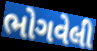
ભોગવેલી